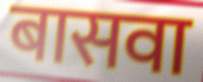
बासवा